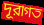
দূরাগত